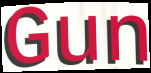
Gun